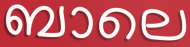
ബാലെ